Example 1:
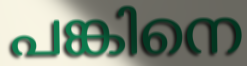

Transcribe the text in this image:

പങ്കിനെ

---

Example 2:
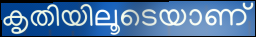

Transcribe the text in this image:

കൃതിയിലൂടെയാണ്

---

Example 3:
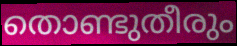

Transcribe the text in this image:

തൊണ്ടുതീരും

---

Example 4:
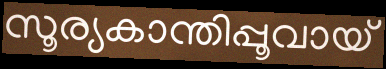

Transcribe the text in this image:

സൂര്യകാന്തിപ്പൂവായ്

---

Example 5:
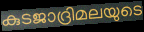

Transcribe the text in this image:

കുടജാദ്രിമലയുടെ